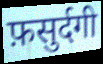
फ़सुर्दगी